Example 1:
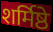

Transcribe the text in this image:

शर्मिष्ठे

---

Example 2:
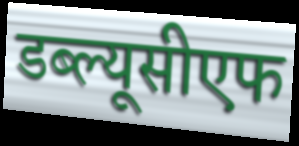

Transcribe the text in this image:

डब्ल्यूसीएफ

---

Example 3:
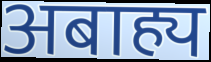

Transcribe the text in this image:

अबाह्य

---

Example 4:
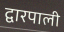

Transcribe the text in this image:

द्वारपाली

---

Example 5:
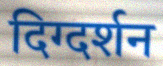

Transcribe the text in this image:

दिग्दर्शन